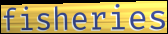
fisheries